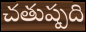
చతుష్పది